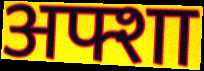
अफ्शा